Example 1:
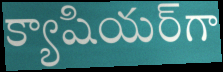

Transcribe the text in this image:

క్యాషియర్‌గా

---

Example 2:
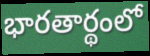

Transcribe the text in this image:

భారతార్థంలో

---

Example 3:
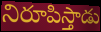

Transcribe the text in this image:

నిరూపిస్తాడు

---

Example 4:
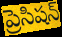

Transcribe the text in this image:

ప్రెసిషన్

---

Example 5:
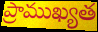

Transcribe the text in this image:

ప్రాముఖ్యత